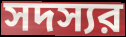
সদস্যর